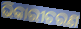
ଭିକାରୀଚରଣ